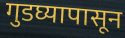
गुडघ्यापासून